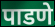
पाडणे